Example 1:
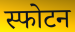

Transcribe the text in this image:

स्फोटन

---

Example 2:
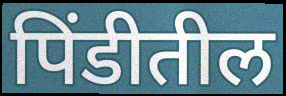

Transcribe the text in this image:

पिंडीतील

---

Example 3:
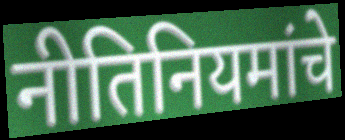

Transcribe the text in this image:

नीतिनियमांचे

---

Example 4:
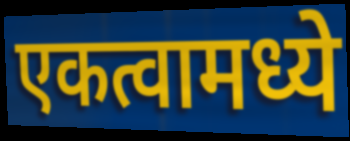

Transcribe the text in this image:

एकत्वामध्ये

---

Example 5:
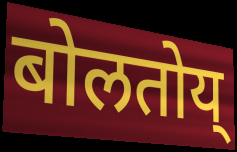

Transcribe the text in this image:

बोलतोय्